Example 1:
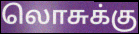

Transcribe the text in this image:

லொசுக்கு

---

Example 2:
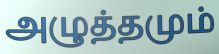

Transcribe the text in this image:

அழுத்தமும்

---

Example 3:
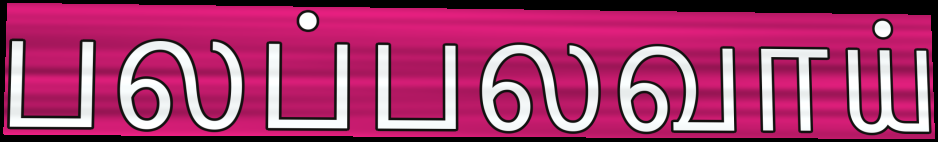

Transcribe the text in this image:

பலப்பலவாய்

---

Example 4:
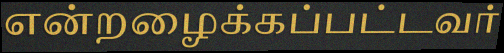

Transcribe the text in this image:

என்றழைக்கப்பட்டவர்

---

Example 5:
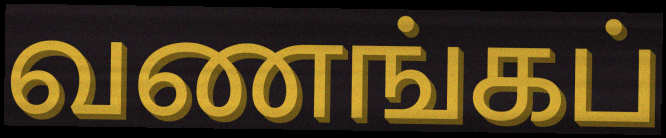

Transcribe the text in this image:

வணங்கப்